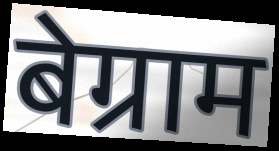
बेग्राम